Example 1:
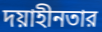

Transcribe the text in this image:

দয়াহীনতার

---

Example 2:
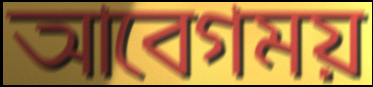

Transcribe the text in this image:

আবেগময়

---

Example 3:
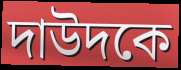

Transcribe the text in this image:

দাউদকে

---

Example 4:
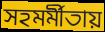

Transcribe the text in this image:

সহমর্মীতায়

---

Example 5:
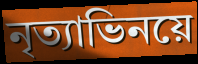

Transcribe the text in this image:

নৃত্যাভিনয়ে